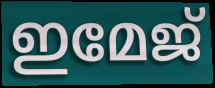
ഇമേജ്